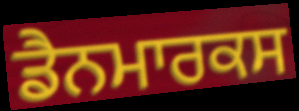
ਡੈਨਮਾਰਕਸ